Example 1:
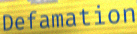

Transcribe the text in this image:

Defamation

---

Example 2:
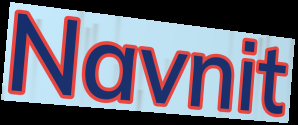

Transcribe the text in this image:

Navnit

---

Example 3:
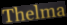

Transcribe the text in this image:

Thelma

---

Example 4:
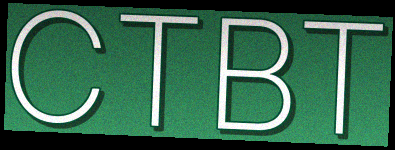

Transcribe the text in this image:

CTBT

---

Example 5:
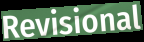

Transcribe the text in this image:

Revisional